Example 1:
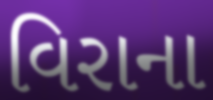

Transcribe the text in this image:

વિરાના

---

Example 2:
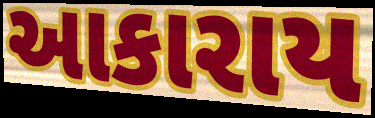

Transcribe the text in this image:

આકારાય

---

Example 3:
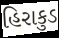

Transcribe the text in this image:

હિરાકુડ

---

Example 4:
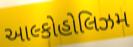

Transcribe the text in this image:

આલ્કોહોલિઝમ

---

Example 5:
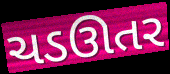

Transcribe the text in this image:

ચડઊતર